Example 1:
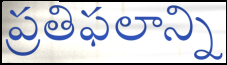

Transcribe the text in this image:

ప్రతిఫలాన్ని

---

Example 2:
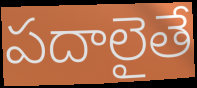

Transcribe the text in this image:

పదాలైతే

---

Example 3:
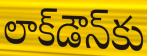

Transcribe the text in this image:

లాక్‌డౌన్‌కు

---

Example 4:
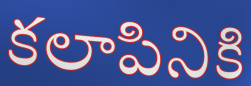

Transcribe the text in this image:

కలాపినికి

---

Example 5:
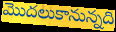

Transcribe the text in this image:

మొదలుకానున్నది